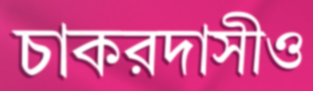
চাকরদাসীও